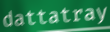
dattatray